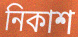
নিকাশ